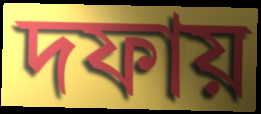
দফায়